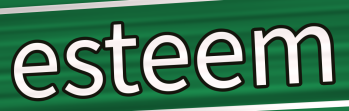
esteem